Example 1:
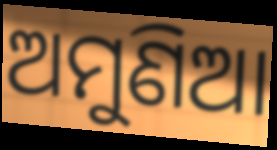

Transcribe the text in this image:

ଅମୁଣିଆ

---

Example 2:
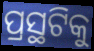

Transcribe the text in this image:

ପ୍ରସ୍ଥଟିକୁ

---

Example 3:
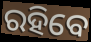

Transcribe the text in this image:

ରହିବେ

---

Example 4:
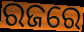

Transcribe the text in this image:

ରଜରେ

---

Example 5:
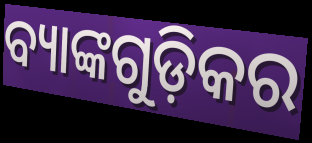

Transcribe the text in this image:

ବ୍ୟାଙ୍କଗୁଡ଼ିକର